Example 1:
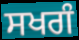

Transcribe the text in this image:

ਸਖਗੰ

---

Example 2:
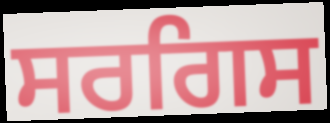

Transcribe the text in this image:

ਸਰਗਿਸ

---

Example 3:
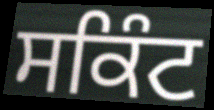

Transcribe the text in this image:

ਸਕਿੰਟ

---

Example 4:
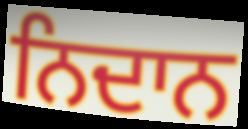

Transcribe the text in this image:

ਨਿਦਾਨ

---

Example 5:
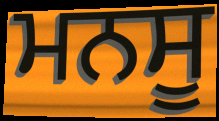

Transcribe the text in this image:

ਮਨਸੂ